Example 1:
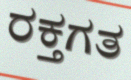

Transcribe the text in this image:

ರಕ್ತಗತ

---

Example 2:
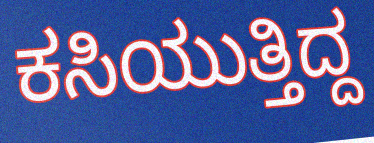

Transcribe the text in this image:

ಕಸಿಯುತ್ತಿದ್ದ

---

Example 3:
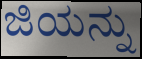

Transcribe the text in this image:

ಜಿಯನ್ನು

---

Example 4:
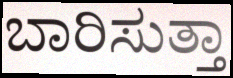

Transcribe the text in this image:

ಬಾರಿಸುತ್ತಾ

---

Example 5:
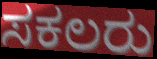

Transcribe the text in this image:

ಸಕಲರು